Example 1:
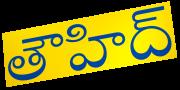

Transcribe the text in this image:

తౌహిద్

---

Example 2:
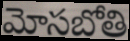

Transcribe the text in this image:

మోసబోతి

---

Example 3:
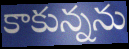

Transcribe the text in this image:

కాకున్నను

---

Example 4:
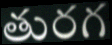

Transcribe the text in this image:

తురగ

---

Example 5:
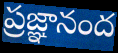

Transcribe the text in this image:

ప్రజ్ఞానంద